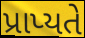
પ્રાપ્યતે